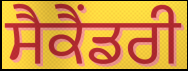
ਸੈਕੈਂਡਰੀ